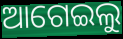
ଆଗେଇଲୁ